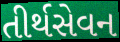
તીર્થસેવન